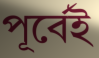
পূর্বেই